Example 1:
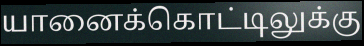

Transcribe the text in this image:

யானைக்கொட்டிலுக்கு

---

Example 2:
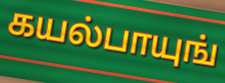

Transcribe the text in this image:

கயல்பாயுங்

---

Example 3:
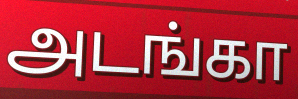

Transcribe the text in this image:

அடங்கா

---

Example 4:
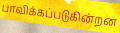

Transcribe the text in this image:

பாவிக்கப்படுகின்றன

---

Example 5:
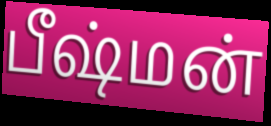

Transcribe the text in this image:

பீஷ்மன்